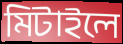
মিটাইলে